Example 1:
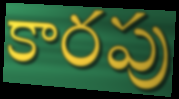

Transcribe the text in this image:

కారపు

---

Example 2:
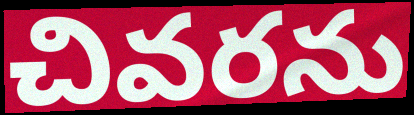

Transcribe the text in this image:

చివరను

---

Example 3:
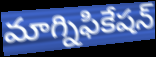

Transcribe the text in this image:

మాగ్నిఫికేషన్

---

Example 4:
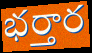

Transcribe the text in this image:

భర్తార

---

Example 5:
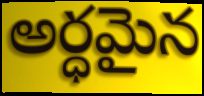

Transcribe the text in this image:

అర్ధమైన